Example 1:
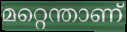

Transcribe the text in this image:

മറ്റെന്താണ്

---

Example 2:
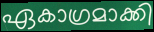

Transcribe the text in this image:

ഏകാഗ്രമാക്കി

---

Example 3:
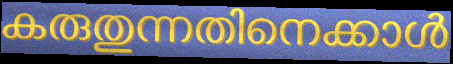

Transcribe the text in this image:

കരുതുന്നതിനെക്കാൾ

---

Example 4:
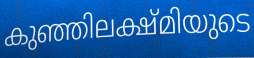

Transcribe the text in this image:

കുഞ്ഞിലക്ഷ്മിയുടെ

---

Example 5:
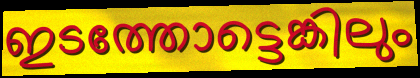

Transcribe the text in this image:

ഇടത്തോട്ടെങ്കിലും